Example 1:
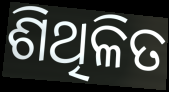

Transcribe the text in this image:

ଶିଥିଳିତ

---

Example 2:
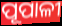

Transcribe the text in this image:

ପୂପାଳୀ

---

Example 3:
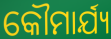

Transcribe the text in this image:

କୌମାର୍ଯ୍ୟ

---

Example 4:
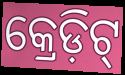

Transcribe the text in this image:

କ୍ରେଡ଼ିଟ୍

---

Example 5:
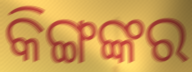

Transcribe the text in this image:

କିଙ୍ଗଙ୍କର